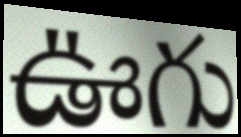
ఊగు